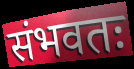
संभवतः